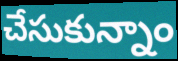
చేసుకున్నాం